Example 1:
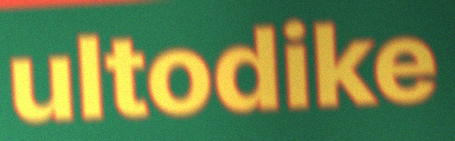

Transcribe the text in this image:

ultodike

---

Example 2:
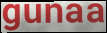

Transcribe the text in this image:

gunaa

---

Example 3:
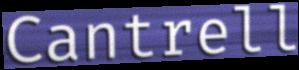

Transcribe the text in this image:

Cantrell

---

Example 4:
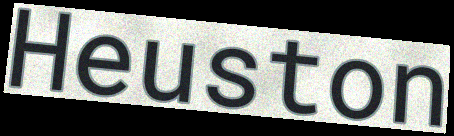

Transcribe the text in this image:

Heuston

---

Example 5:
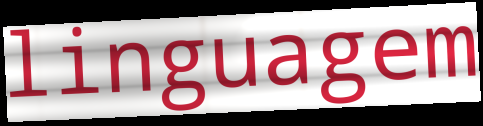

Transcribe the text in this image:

linguagem